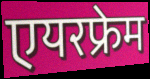
एयरफ्रेम